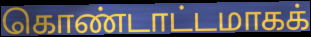
கொண்டாட்டமாகக்